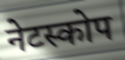
नेटस्कोप